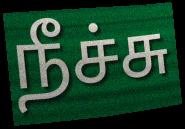
நீச்சு